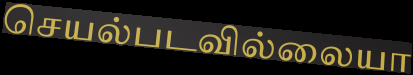
செயல்படவில்லையா